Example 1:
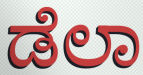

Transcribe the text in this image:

ಡೆಲಾ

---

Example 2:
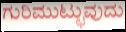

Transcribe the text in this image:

ಗುರಿಮುಟ್ಟುವುದು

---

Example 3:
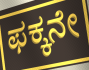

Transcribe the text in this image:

ಫಕ್ಕನೇ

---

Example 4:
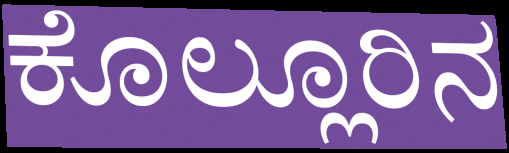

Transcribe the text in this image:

ಕೊಲ್ಲೂರಿನ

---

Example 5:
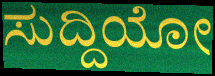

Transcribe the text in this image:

ಸುದ್ದಿಯೋ